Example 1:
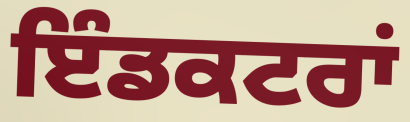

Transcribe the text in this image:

ਇੰਡਕਟਰਾਂ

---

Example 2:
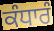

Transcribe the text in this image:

ਕੰਧਾਰੰ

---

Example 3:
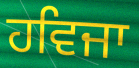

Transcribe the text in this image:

ਹਵਿਜਾ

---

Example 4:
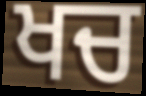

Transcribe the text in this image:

ਖਚ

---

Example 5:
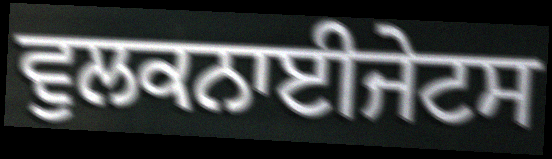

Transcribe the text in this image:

ਵੁਲਕਨਾਈਜੇਟਸ